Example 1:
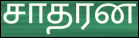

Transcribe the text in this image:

சாதரன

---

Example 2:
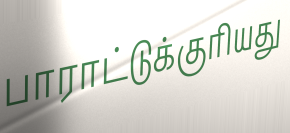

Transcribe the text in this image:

பாராட்டுக்குரியது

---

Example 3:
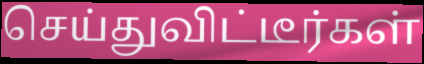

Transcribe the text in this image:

செய்துவிட்டீர்கள்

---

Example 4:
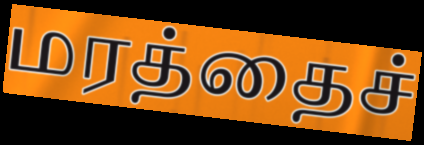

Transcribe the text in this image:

மரத்தைச்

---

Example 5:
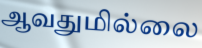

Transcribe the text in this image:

ஆவதுமில்லை